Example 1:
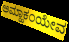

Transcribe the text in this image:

ಅಮ್ಹಾಕಂಯೇವ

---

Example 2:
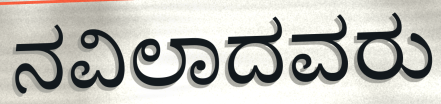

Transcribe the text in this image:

ನವಿಲಾದವರು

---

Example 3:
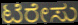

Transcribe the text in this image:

ಟೆರೇಸು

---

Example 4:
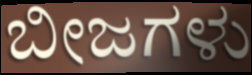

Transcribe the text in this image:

ಬೀಜಗಳು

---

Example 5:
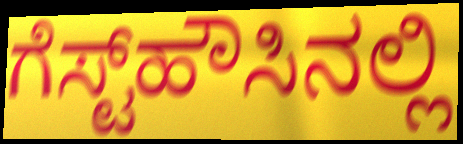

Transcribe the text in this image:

ಗೆಸ್ಟ್‌ಹೌಸಿನಲ್ಲಿ